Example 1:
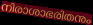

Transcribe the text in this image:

നിരാശാഭരിതനും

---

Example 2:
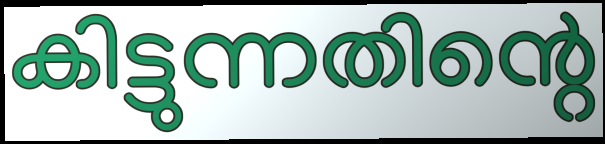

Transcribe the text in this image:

കിട്ടുന്നതിന്റെ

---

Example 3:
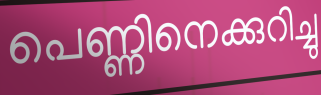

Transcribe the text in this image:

പെണ്ണിനെക്കുറിച്ചു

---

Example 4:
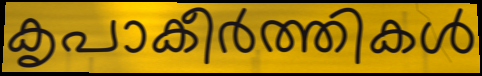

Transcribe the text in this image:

കൃപാകീർത്തികൾ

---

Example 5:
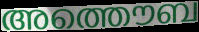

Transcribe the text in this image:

അത്തൌബ